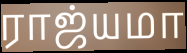
ராஜ்யமா